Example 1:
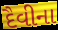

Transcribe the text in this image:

દૈવીના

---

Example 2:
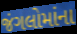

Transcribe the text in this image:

જંગલોમાંના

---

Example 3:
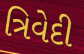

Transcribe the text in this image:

ત્રિવેદી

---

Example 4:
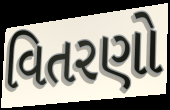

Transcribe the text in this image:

વિતરણો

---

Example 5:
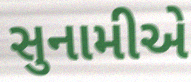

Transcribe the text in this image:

સુનામીએ